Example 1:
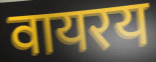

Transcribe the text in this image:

वायरय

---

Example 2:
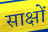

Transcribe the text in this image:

साक्षों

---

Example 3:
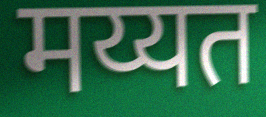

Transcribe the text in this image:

मय्यत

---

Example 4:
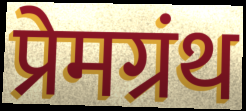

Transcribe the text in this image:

प्रेमग्रंथ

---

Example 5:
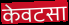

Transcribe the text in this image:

केवटसा